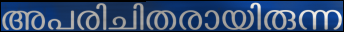
അപരിചിതരായിരുന്ന